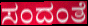
ಸಂದಂತೆ